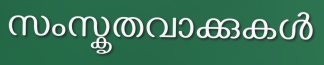
സംസ്കൃതവാക്കുകൾ